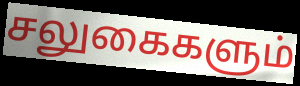
சலுகைகளும்